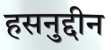
हसनुद्दीन